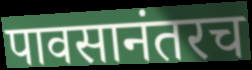
पावसानंतरच